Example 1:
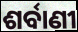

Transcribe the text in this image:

ଶର୍ବାଣୀ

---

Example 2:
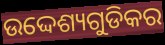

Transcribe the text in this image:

ଉଦ୍ଦେଶ୍ୟଗୁଡିକର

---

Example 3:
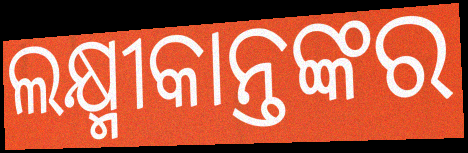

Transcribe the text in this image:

ଲକ୍ଷ୍ମୀକାନ୍ତଙ୍କର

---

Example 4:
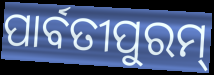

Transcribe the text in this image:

ପାର୍ବତୀପୁରମ୍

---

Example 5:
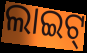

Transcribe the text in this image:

ଲାଇଟ୍